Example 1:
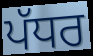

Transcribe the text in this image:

ਪੱਧਰ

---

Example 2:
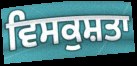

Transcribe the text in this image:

ਵਿਸਕੁਸ਼ਤਾ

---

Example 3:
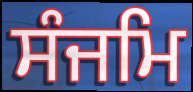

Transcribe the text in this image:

ਸੰਜਮਿ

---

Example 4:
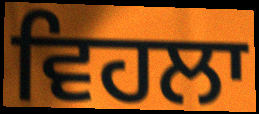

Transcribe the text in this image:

ਵਿਹਲਾ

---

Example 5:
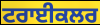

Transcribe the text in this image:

ਟਰਾਈਕਲਰ